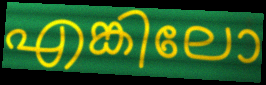
എങ്കിലോ